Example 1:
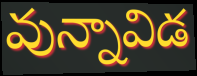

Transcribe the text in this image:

వున్నావిడ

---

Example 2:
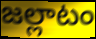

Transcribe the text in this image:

జల్లాటం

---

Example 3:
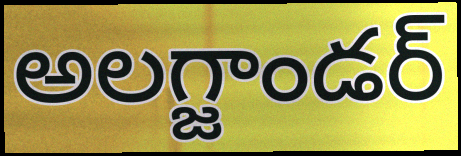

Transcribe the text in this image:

అలగ్జాండర్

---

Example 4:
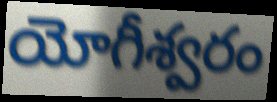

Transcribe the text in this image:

యోగీశ్వరం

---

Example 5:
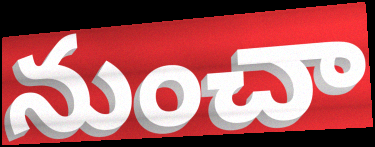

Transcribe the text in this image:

నుంచా